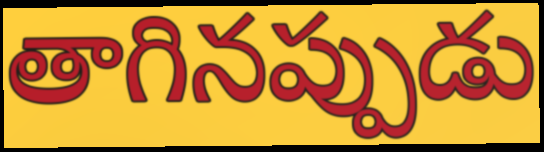
తాగినప్పుడు